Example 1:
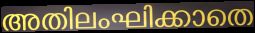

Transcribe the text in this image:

അതിലംഘിക്കാതെ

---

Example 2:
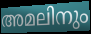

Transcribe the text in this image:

അമലിനും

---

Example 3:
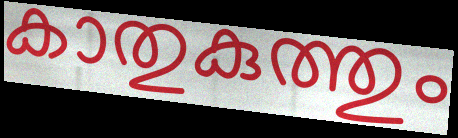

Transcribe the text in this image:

കാതുകുത്തും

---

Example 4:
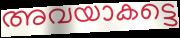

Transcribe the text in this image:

അവയാകട്ടെ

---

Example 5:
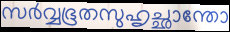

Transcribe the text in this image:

സർവ്വഭൂതസുഹൃച്ഛാന്തോ